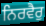
ਨਿਰਵੈਰੁ